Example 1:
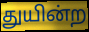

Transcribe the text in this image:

துயின்ற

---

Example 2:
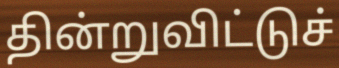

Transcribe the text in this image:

தின்றுவிட்டுச்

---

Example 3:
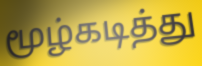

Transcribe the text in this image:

மூழ்கடித்து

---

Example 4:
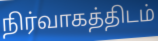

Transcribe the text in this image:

நிர்வாகத்திடம்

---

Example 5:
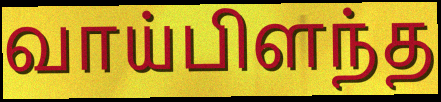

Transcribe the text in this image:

வாய்பிளந்த